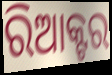
ରିଆକ୍ଟର